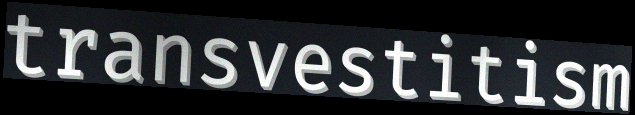
transvestitism